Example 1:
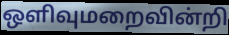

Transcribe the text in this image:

ஒளிவுமறைவின்றி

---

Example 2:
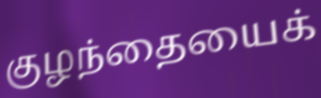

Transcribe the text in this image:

குழந்தையைக்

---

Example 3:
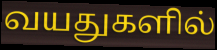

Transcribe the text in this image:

வயதுகளில்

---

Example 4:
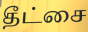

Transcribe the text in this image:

தீட்சை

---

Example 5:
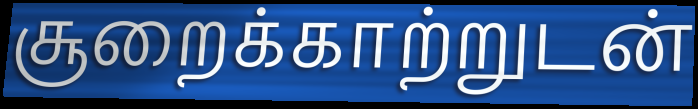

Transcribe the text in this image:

சூறைக்காற்றுடன்